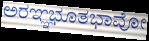
ಅರಞ್ಞಭೂತಭಾವೋ